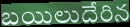
బయిలుదేరిన